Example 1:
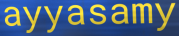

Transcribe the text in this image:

ayyasamy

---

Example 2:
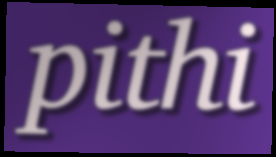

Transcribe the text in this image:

pithi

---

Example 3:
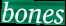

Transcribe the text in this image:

bones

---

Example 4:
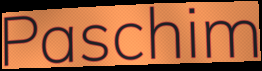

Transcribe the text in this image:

Paschim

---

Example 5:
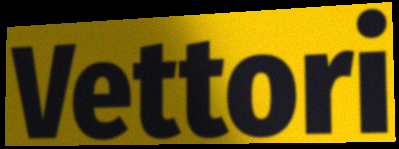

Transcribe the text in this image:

Vettori